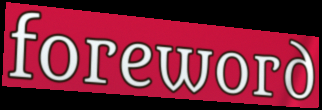
foreword